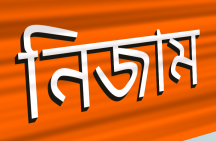
নিজাম